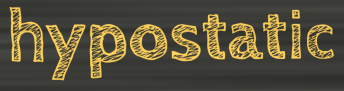
hypostatic